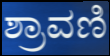
ಶ್ರಾವಣಿ